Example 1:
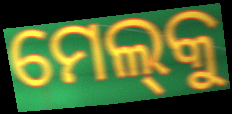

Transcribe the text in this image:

ମେଲ୍‌କୁ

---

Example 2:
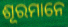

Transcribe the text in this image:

ଶୂରମାନେ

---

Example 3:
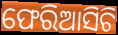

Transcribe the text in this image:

ଫେରିଆସିଚି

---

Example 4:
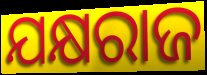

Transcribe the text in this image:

ଯକ୍ଷରାଜ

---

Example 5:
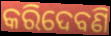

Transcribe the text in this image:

କରିଦେବଣି